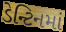
ડેન્ટિનમાં